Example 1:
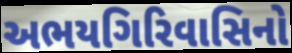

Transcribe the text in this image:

અભયગિરિવાસિનો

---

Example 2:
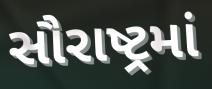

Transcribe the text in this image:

સૌરાષ્ટ્રમાં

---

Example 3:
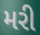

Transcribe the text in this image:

મરી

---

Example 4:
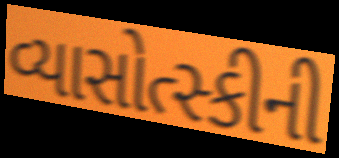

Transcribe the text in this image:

વ્યાસોત્સ્કીની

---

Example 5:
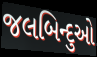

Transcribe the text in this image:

જલબિન્દુઓ